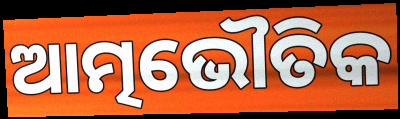
ଆତ୍ମଭୌତିକ